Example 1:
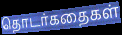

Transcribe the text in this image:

தொடர்கதைகள்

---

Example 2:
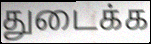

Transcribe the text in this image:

துடைக்க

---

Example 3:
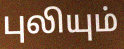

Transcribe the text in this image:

புலியும்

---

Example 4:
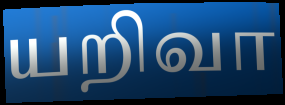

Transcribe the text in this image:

யறிவா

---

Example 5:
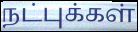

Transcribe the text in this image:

நட்புக்கள்